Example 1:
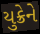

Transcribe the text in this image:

યુક્રેને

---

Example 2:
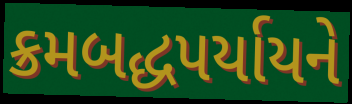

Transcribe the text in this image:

ક્રમબદ્ધપર્યાયને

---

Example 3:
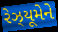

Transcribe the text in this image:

રેઝ્યૂમેને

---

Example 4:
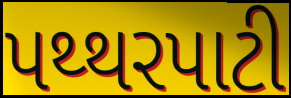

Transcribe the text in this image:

પથ્થરપાટી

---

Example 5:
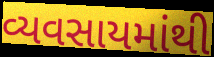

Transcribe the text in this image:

વ્યવસાયમાંથી